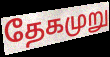
தேகமுறு